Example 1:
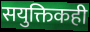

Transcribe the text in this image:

सयुक्तिकही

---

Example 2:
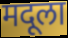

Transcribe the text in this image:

मदूला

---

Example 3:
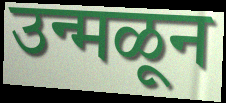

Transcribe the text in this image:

उन्मळून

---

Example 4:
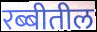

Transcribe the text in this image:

रब्बीतील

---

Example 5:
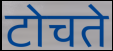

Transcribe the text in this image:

टोचते